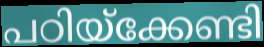
പഠിയ്ക്കേണ്ടി